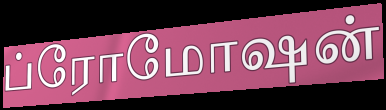
ப்ரோமோஷன்